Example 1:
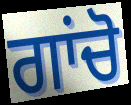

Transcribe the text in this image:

ਗਾਂਚੋ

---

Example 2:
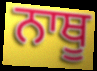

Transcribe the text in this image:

ਨਾਥੂ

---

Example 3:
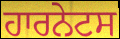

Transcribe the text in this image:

ਹਾਰਨੇਟਸ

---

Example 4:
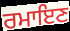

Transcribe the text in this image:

ਰਮਾਇਣ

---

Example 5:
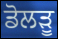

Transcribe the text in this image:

ਡੋਲੜੂ